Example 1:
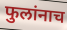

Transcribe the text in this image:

फुलांनाच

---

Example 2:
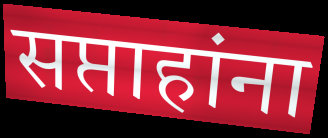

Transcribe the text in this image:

सप्ताहांना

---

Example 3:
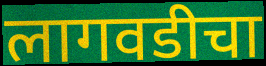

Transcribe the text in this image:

लागवडीचा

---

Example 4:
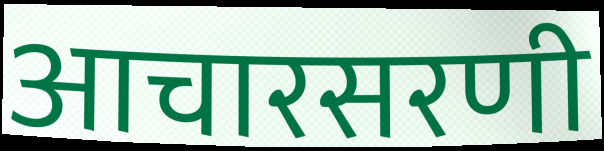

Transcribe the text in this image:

आचारसरणी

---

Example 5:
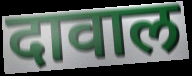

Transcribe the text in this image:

दावाल